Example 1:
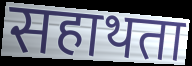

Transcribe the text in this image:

सहाथता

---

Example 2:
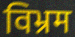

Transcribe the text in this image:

विभ्रम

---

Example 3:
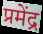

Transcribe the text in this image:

प्रमेंद्र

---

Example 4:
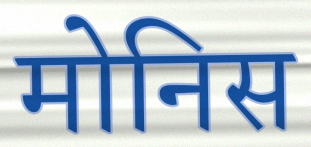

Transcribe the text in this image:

मोनिस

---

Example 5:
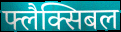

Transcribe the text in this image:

फ्लैक्सिबल